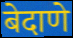
बेदाणे